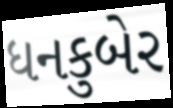
ધનકુબેર